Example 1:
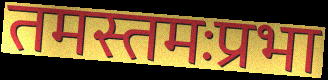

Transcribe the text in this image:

तमस्तमःप्रभा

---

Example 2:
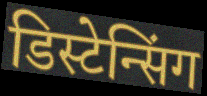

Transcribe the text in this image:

डिस्टेन्सिंग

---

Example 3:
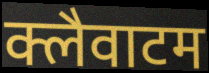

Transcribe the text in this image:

क्लैवाटम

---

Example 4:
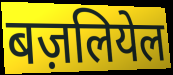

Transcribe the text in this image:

बज़लियेल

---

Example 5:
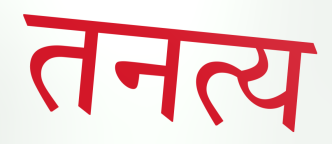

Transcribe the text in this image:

तनत्य